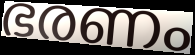
ഭരണം